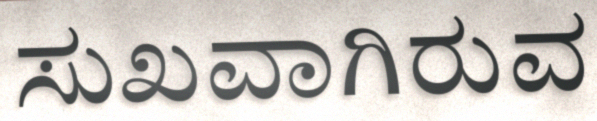
ಸುಖವಾಗಿರುವ